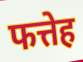
फत्तेह